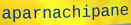
aparnachipane